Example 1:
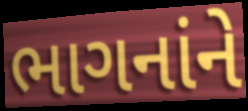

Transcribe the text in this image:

ભાગનાંને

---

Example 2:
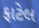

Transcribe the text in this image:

ફાટેલ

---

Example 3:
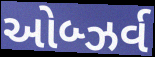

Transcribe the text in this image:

ઓબ્ઝર્વ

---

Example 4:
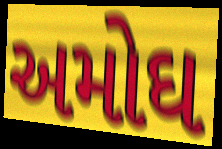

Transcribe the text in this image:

અમોઘ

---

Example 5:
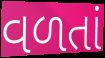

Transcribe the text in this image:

વળતાં